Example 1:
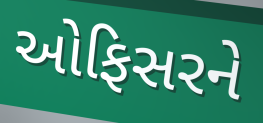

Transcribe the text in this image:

ઓફિસરને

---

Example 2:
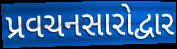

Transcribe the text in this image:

પ્રવચનસારોદ્વાર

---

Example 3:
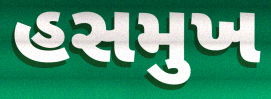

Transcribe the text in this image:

હસમુખ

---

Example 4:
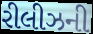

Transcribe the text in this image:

રીલીઝની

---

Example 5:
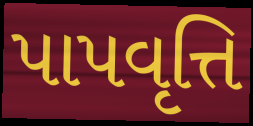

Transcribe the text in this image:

પાપવૃત્તિ